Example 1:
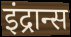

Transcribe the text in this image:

इंद्रान्स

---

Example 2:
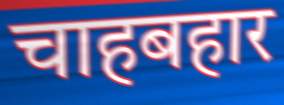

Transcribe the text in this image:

चाहबहार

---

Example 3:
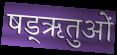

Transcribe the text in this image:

षड्ऋतुओं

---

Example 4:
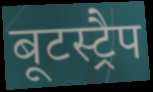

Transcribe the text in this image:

बूटस्ट्रैप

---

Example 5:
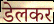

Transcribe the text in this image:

डेलकर